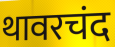
थावरचंद